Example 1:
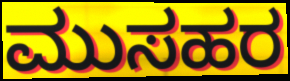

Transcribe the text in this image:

ಮುಸಹರ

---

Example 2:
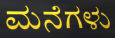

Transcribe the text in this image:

ಮನೆಗಳು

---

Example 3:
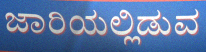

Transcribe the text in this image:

ಜಾರಿಯಲ್ಲಿಡುವ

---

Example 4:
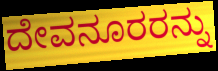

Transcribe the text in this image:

ದೇವನೂರರನ್ನು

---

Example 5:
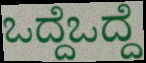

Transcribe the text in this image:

ಒದ್ದೆಒದ್ದೆ